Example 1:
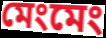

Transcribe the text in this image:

মেংমেং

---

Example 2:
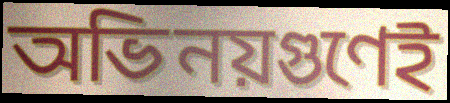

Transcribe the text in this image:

অভিনয়গুণেই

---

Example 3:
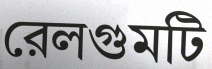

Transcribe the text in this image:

রেলগুমটি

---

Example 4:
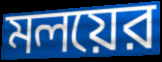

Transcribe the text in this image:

মলয়ের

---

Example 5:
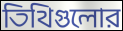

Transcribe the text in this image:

তিথিগুলোর